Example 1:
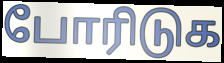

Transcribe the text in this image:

போரிடுக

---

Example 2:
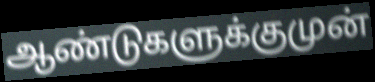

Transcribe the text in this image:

ஆண்டுகளுக்குமுன்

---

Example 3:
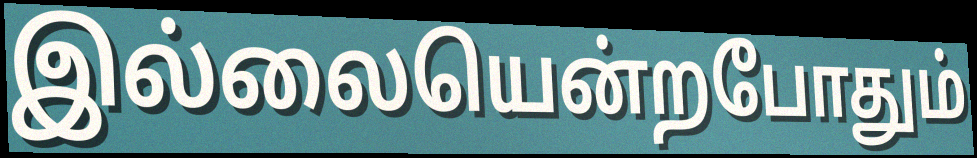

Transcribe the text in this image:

இல்லையென்றபோதும்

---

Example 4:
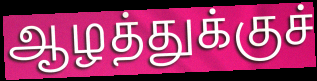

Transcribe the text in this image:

ஆழத்துக்குச்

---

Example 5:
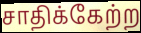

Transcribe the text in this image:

சாதிக்கேற்ற